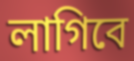
লাগিবে